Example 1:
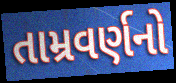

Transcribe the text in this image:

તામ્રવર્ણનો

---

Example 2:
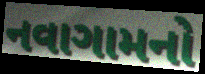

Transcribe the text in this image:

નવાગામનો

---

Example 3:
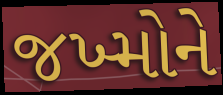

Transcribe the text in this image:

જખ્મોને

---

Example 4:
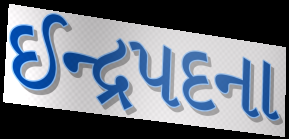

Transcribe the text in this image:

ઈન્દ્રપદના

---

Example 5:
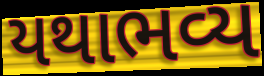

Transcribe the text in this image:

યથાભવ્ય